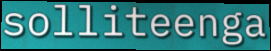
solliteenga